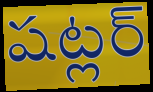
షట్లర్